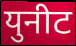
युनीट